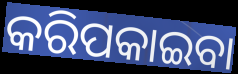
କରିପକାଇବା